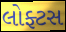
લોફ્ટસ